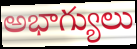
అభాగ్యులు